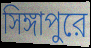
সিঙ্গাপুরে